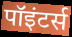
पॉइंटर्स